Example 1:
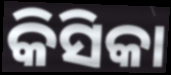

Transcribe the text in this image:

କିସିକା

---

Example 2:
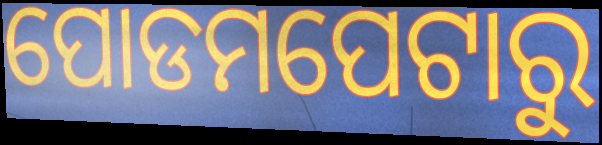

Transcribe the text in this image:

ପୋଡମପେଟାରୁ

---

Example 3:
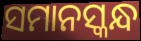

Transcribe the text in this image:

ସମାନସ୍କନ୍ଧ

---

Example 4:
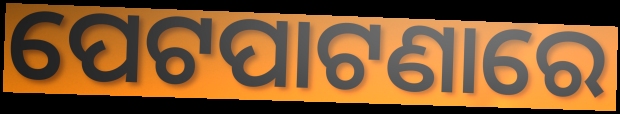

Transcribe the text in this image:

ପେଟପାଟଣାରେ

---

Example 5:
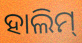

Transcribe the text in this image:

ହାଲିମ୍